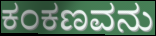
ಕಂಕಣವನು